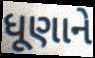
ધૂણાને